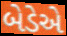
બેડેએ